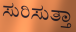
ಸುರಿಸುತ್ತಾ